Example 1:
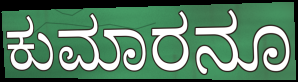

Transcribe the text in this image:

ಕುಮಾರನೂ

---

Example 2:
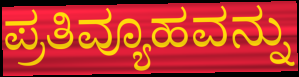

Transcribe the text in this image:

ಪ್ರತಿವ್ಯೂಹವನ್ನು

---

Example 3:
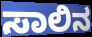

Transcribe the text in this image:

ಸಾಲಿನ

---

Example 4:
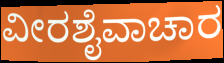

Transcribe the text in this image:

ವೀರಶೈವಾಚಾರ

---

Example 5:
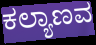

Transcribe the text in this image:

ಕಲ್ಯಾಣವ